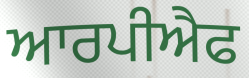
ਆਰਪੀਐਫ